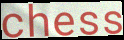
chess